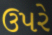
ઉપરે